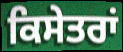
ਕਿਸੇਤਰਾਂ